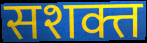
सशक्त